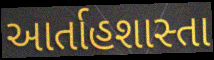
આર્તાહશાસ્તા